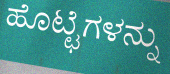
ಹೊಟ್ಟೆಗಳನ್ನು